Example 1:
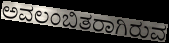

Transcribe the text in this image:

ಅವಲಂಬಿತರಾಗಿರುವ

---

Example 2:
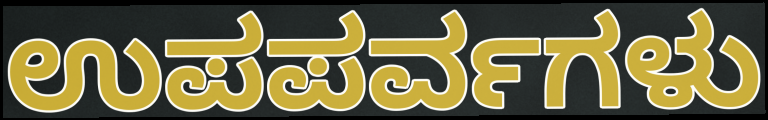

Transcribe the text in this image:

ಉಪಪರ್ವಗಳು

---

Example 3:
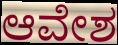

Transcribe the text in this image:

ಆವೇಶ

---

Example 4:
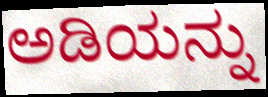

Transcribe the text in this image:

ಅಡಿಯನ್ನು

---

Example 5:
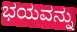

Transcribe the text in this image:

ಭಯವನ್ನು